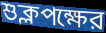
শুক্লপক্ষের